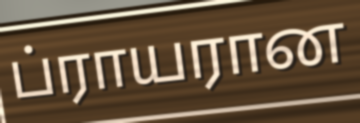
ப்ராயரான